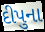
દીપુના